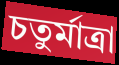
চতুর্মাত্রা